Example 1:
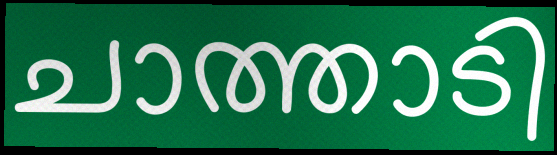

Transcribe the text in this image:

ചാത്താടി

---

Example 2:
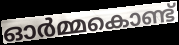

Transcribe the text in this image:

ഓർമ്മകൊണ്ട്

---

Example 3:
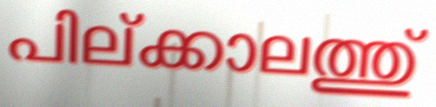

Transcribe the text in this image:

പില്ക്കാലത്തു്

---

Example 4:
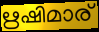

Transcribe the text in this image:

ഋഷിമാര്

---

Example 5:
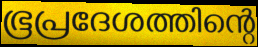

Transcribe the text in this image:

ഭൂപ്രദേശത്തിന്റെ